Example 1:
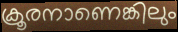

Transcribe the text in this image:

ക്രൂരനാണെങ്കിലും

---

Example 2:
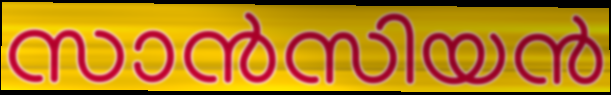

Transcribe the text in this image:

സാൻസിയൻ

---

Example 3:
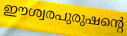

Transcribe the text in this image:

ഈശ്വരപുരുഷന്റെ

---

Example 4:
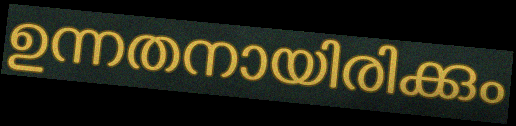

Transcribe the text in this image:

ഉന്നതനായിരിക്കും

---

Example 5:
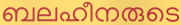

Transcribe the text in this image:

ബലഹീനരുടെ